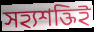
সহ্যশক্তিই